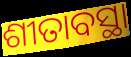
ଶୀତାବସ୍ଥା